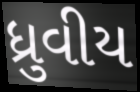
ધ્રુવીય